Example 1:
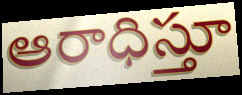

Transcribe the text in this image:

ఆరాధిస్తూ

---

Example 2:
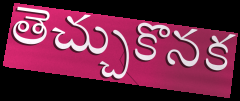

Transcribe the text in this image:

తెచ్చుకొనక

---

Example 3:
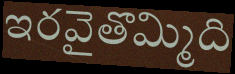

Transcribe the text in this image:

ఇరవైతొమ్మిది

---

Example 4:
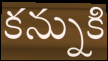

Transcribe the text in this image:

కన్నుకి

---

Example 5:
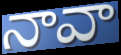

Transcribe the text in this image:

నావా